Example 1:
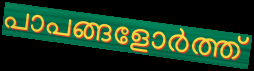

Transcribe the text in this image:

പാപങ്ങളോർത്ത്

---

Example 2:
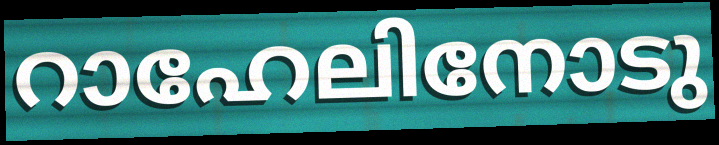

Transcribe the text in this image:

റാഹേലിനോടു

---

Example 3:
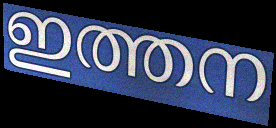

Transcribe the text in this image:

ഇത്തന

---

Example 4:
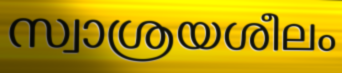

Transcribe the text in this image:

സ്വാശ്രയശീലം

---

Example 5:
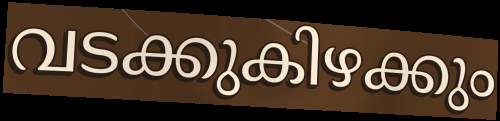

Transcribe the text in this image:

വടക്കുകിഴക്കും